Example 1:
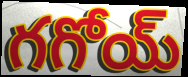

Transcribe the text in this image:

గగోయ్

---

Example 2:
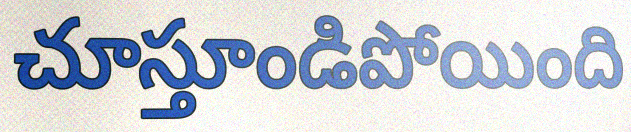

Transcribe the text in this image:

చూస్తూండిపోయింది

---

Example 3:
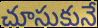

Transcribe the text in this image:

చూసుకునే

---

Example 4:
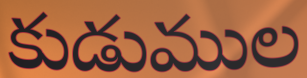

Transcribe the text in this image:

కుడుముల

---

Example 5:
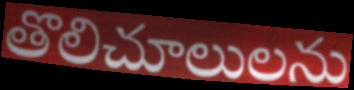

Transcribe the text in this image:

తొలిచూలులను